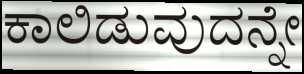
ಕಾಲಿಡುವುದನ್ನೇ